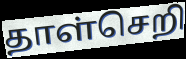
தாள்செறி